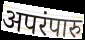
अपरंपारु